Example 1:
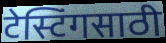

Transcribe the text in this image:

टेस्टिंगसाठी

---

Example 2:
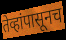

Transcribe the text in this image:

तेव्हांपासूनच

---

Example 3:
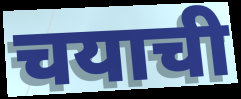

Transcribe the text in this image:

चयाची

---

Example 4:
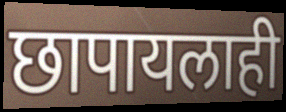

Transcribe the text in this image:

छापायलाही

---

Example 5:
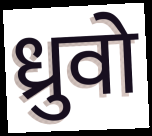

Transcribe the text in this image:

ध्रुवो